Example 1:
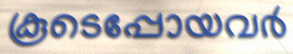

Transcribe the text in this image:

കൂടെപ്പോയവർ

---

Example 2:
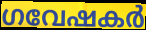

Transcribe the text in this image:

ഗവേഷകർ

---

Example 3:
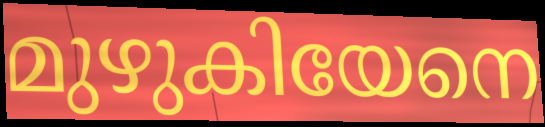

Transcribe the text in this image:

മുഴുകിയേനെ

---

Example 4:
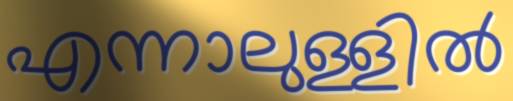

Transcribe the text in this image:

എന്നാലുള്ളിൽ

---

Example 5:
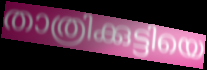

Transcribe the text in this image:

താത്രിക്കുട്ടിയെ